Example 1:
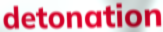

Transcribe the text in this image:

detonation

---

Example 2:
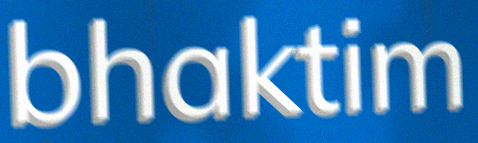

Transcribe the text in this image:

bhaktim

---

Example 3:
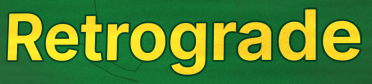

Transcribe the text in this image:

Retrograde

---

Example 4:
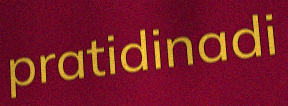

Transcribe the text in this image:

pratidinadi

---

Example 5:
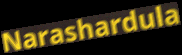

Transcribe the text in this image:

Narashardula